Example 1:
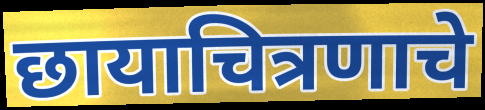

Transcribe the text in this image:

छायाचित्रणाचे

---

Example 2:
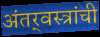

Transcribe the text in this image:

अंतर्वस्त्रांची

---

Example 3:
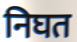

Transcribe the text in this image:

निघत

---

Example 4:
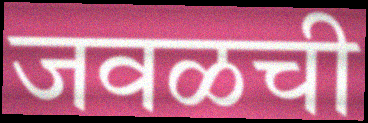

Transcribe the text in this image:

जवळची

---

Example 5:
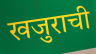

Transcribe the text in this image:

खजुराची